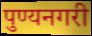
पुण्यनगरी